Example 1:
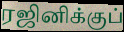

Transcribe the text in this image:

ரஜினிக்குப்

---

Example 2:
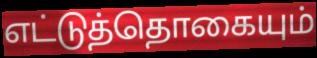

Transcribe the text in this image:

எட்டுத்தொகையும்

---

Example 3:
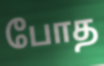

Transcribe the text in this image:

போத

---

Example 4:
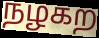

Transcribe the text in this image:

நழகற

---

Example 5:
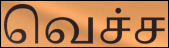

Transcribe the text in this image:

வெச்ச